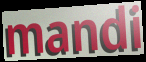
mandi